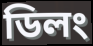
ডিলং